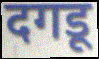
दगडू